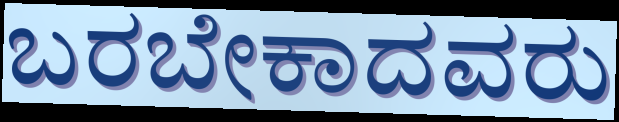
ಬರಬೇಕಾದವರು